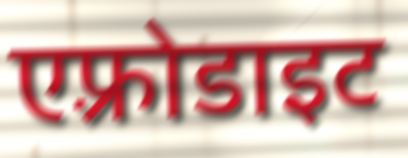
एफ़्रोडाइट